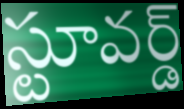
స్టూవర్డ్